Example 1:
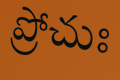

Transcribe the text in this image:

ప్రోచుః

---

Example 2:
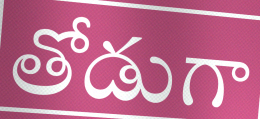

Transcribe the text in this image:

తోడుగా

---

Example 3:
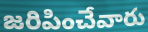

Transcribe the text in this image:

జరిపించేవారు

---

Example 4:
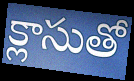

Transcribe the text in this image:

క్లాసుతో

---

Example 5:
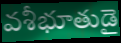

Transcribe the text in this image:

వశీభూతుడై